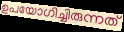
ഉപയോഗിച്ചിരുന്നത്